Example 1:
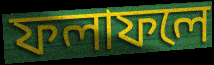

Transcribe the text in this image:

ফলাফলে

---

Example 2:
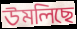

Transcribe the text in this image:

উমলিছে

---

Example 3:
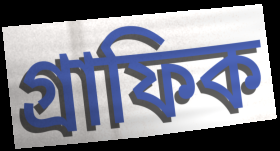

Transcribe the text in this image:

গ্ৰাফিক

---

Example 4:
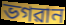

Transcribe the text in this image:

ভগৱান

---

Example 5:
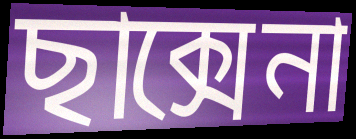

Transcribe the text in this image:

ছাক্সেনা